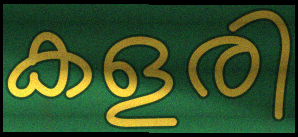
കളരി